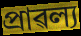
প্ৰাৱল্য